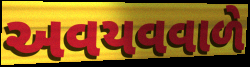
અવયવવાળે